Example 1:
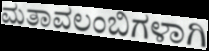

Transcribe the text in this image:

ಮತಾವಲಂಬಿಗಳಾಗಿ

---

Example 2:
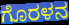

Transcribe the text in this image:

ಗೊರಳನ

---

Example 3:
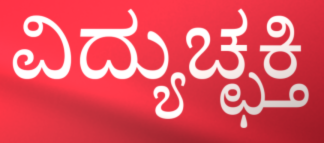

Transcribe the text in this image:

ವಿದ್ಯುಚ್ಛಕ್ತಿ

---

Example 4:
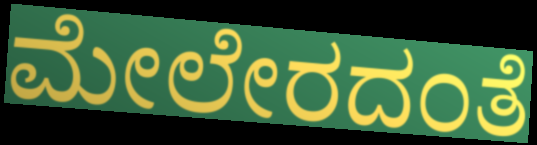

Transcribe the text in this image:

ಮೇಲೇರದಂತೆ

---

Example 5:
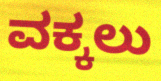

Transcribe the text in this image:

ವಕ್ಕಲು